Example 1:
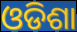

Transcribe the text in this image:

ଓଡିଶା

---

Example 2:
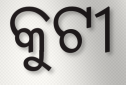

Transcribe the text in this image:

କୁଟୀ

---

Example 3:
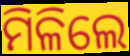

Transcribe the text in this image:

ମିଳିଲେ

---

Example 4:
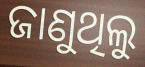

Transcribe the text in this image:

ଜାଣୁଥିଲୁ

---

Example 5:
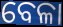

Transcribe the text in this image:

ବେଳା